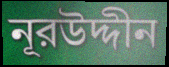
নূরউদ্দীন